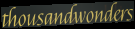
thousandwonders